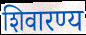
शिवारण्य